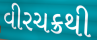
વીરચક્રથી